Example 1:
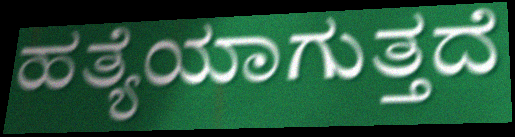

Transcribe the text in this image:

ಹತ್ಯೆಯಾಗುತ್ತದೆ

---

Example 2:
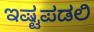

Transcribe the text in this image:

ಇಷ್ಟಪಡಲಿ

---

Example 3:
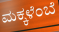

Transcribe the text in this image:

ಮಕ್ಕಳೆಂಬೆ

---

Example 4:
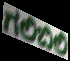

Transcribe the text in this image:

ಗಲಿಬಿಲಿ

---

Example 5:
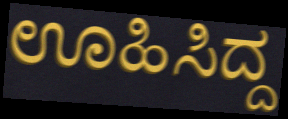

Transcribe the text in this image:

ಊಹಿಸಿದ್ದ